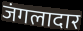
जंगलादार